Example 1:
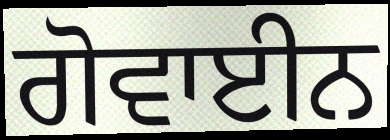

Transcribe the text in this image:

ਗੋਵਾਈਨ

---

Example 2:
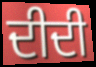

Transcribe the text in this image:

ਦੀਦੀ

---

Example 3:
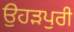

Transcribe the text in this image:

ਉਹੜਪੁਰੀ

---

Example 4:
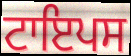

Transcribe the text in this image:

ਟਾਇਪਸ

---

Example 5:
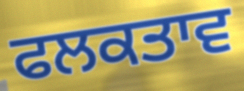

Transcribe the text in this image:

ਫਲਕਤਾਵ